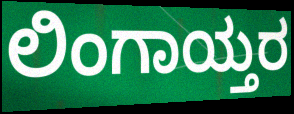
ಲಿಂಗಾಯ್ತರ